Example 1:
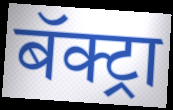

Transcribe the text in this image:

बॅक्ट्रा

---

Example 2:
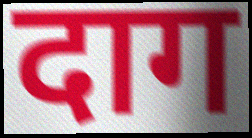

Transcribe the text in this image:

दाग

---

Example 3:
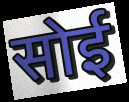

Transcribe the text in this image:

सोई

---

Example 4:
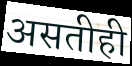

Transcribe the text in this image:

असतीही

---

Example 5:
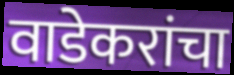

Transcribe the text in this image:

वाडेकरांचा